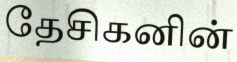
தேசிகனின்